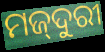
ମଜ୍‌ଦୁରୀ